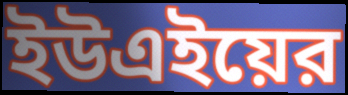
ইউএইয়ের